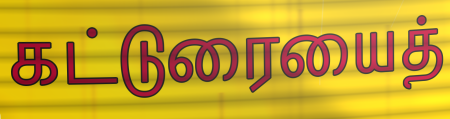
கட்டுரையைத்